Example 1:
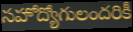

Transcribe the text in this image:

సహోద్యోగులందరికీ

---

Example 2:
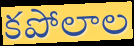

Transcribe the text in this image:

కపోలాల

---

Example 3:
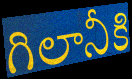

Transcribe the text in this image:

గిలానీకి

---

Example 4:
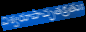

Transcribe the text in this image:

విశ్వరూపాచ్ఛతక్రతుః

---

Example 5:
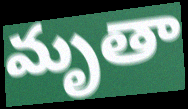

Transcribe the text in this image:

మృతా